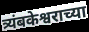
त्र्यंबकेश्वराच्या